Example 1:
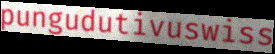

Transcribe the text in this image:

pungudutivuswiss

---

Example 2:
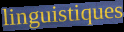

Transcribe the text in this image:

linguistiques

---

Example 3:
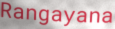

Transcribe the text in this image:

Rangayana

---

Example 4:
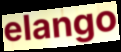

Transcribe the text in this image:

elango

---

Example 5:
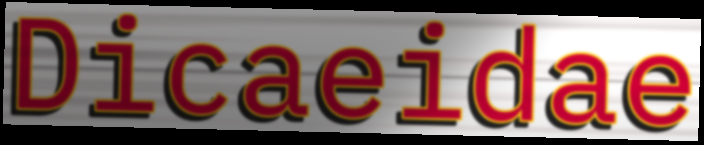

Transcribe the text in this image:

Dicaeidae